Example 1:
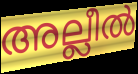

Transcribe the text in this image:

അല്ലീൽ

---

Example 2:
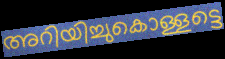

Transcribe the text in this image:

അറിയിച്ചുകൊള്ളട്ടെ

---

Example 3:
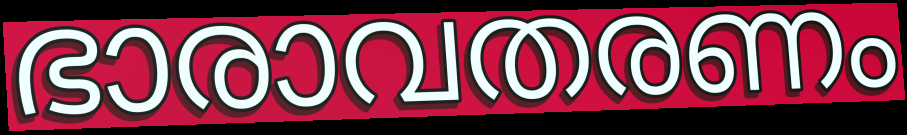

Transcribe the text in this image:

ഭാരാവതരണം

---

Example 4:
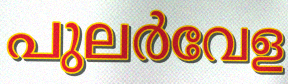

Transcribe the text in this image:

പുലർവേള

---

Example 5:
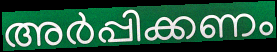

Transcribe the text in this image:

അർപ്പിക്കണം